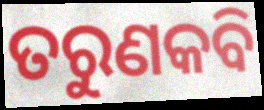
ତରୁଣକବି